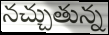
నచ్చుతున్న